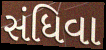
સંધિવા